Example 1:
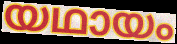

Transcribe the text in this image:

യഥായം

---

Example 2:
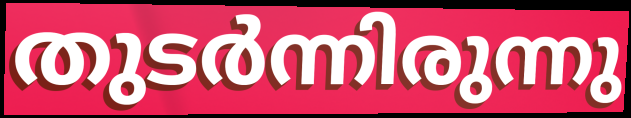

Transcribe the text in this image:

തുടർന്നിരുന്നു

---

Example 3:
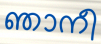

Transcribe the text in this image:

ഞാനീ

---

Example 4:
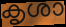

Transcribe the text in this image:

കൃശാ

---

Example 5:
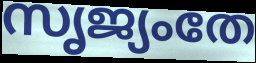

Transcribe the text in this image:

സൃജ്യംതേ